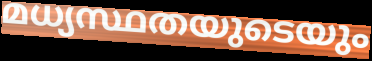
മധ്യസ്ഥതയുടെയും